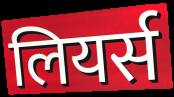
लियर्स